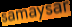
samaysar